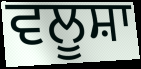
ਵਲੂਸ਼ਾ